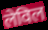
लेविल